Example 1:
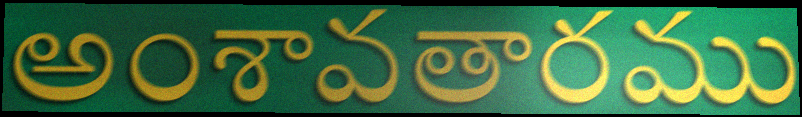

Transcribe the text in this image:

అంశావతారము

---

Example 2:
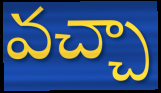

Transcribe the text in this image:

వచ్చా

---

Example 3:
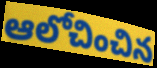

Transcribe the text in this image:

ఆలోచించిన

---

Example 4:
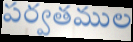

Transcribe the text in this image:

పర్వతముల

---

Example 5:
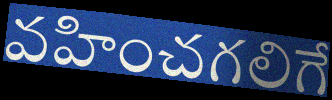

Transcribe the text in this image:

వహించగలిగే